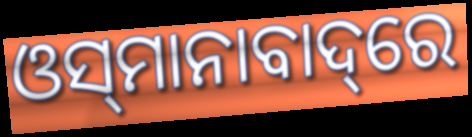
ଓସ୍‌ମାନାବାଦ୍‌ରେ